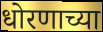
धोरणाच्या